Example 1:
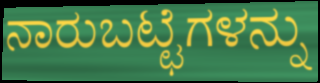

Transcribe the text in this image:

ನಾರುಬಟ್ಟೆಗಳನ್ನು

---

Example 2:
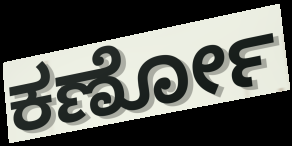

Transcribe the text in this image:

ಕರ್ಣೋ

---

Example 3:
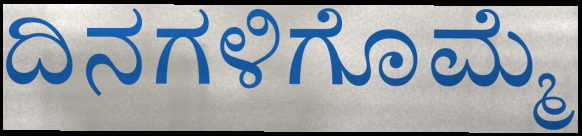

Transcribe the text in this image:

ದಿನಗಳಿಗೊಮ್ಮೆ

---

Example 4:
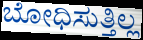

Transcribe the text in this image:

ಬೋಧಿಸುತ್ತಿಲ್ಲ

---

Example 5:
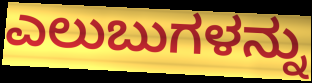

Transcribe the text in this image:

ಎಲುಬುಗಳನ್ನು